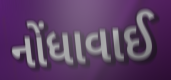
નોંધાવાઈ